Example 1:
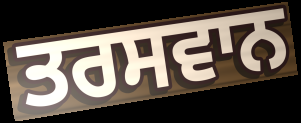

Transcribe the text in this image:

ਤਰਸਵਾਨ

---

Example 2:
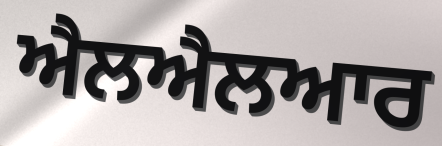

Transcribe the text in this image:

ਐਲਐਲਆਰ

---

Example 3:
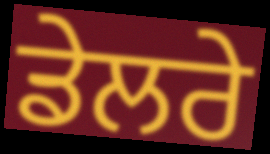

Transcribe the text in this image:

ਡੇਲਰੇ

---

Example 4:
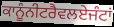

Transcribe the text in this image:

ਕਾਨੂੰਨੀਟਰੈਵਲਏਜੰਟਾਂ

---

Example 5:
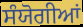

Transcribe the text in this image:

ਸੰਯੋਗੀਆਂ